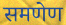
समणेण